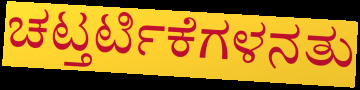
ಚಟ್ತರ್ಟಿಕೆಗಳನತು